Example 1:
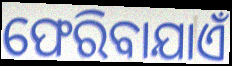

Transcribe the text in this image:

ଫେରିବାଯାଏଁ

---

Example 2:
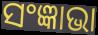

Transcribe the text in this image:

ସଂଜ୍ଞାଭା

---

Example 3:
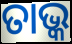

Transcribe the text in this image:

ତାଭ୍କ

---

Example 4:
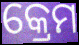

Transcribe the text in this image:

କ୍ରେମ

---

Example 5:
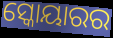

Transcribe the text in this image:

ସ୍କୋୟାରର